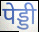
पेड्डी